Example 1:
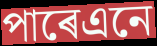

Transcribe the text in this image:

পাৰেএনে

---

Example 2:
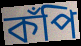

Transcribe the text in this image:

কঁপি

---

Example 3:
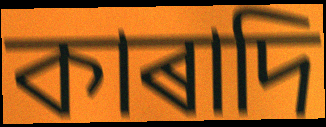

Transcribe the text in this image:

কাৰাদি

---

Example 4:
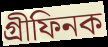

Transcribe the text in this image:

গ্ৰীফিনক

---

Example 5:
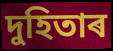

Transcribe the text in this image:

দুহিতাৰ